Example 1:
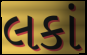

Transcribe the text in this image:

લકાં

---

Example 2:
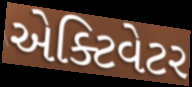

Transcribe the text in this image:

એક્ટિવેટર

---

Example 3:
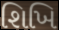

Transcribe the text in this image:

શિખિ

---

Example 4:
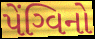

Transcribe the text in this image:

પેંગ્વિનો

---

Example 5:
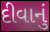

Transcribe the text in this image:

દીવાનું